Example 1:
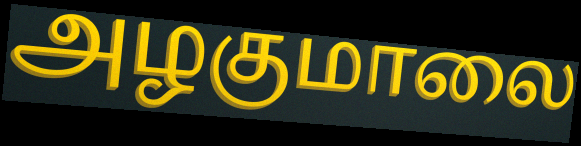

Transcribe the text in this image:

அழகுமாலை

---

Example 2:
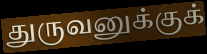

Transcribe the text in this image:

துருவனுக்குக்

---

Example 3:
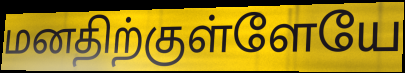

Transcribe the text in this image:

மனதிற்குள்ளேயே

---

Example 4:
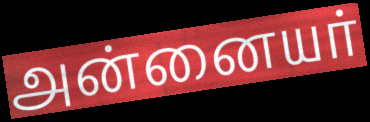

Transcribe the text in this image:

அன்னையர்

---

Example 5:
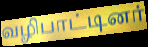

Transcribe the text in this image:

வழிபாட்டினர்